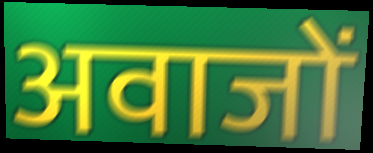
अवाजों